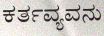
ಕರ್ತವ್ಯವನು